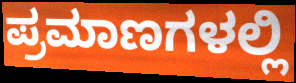
ಪ್ರಮಾಣಗಳಲ್ಲಿ